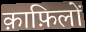
क़ाफ़िलों